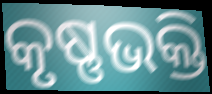
କୃଷ୍ଣଭକ୍ତି